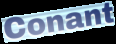
Conant